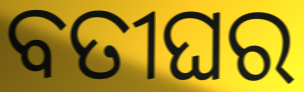
ବତୀଘର